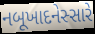
નબૂખાદનેસ્સારે